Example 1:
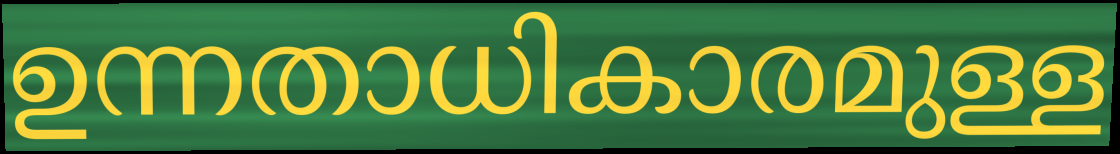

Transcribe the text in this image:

ഉന്നതാധികാരമുള്ള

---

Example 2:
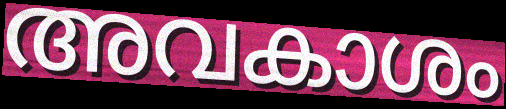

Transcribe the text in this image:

അവകാശം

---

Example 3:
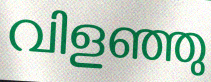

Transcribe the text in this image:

വിളഞ്ഞു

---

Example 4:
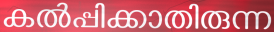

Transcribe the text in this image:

കൽപ്പിക്കാതിരുന്ന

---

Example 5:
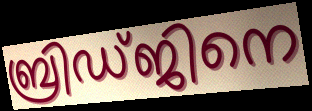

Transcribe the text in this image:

ബ്രിഡ്ജിനെ